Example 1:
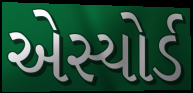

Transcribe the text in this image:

એસ્યોર્ડ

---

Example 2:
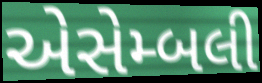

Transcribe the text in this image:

એસેમ્બલી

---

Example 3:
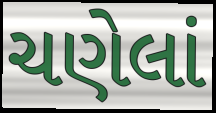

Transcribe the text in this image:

ચણેલાં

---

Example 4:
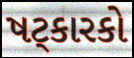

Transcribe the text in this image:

ષટ્કારકો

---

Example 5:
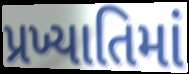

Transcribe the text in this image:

પ્રખ્યાતિમાં